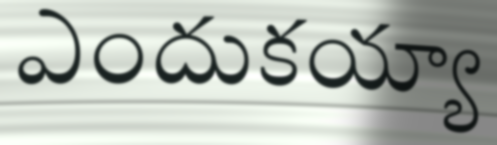
ఎందుకయ్యా